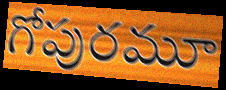
గోపురమూ